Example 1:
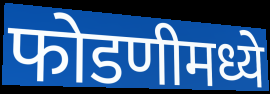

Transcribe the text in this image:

फोडणीमध्ये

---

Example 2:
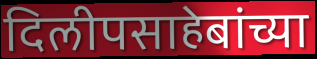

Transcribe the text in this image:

दिलीपसाहेबांच्या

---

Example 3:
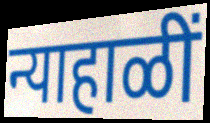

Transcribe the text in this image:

न्याहाळीं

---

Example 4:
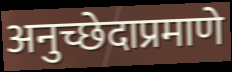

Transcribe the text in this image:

अनुच्छेदाप्रमाणे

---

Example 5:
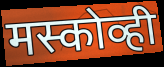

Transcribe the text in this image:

मस्कोव्ही